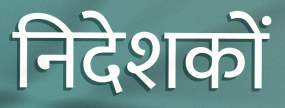
निदेशकों